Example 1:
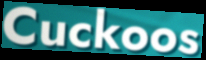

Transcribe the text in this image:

Cuckoos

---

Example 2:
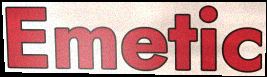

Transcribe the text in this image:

Emetic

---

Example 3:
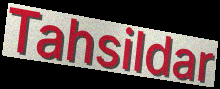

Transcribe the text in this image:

Tahsildar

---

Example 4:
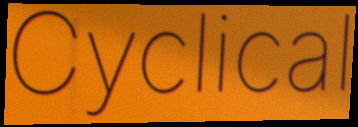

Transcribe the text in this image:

Cyclical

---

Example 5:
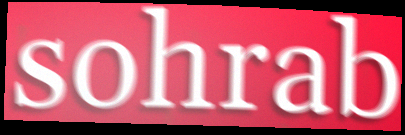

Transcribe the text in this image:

sohrab